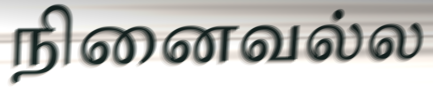
நினைவல்ல